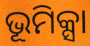
ଭୂମିକ୍ସା